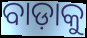
ବାଡ଼ାକୁ